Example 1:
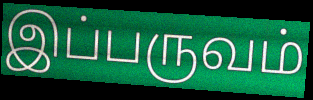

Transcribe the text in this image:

இப்பருவம்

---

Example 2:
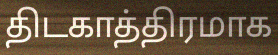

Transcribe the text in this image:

திடகாத்திரமாக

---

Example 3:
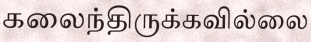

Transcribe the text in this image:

கலைந்திருக்கவில்லை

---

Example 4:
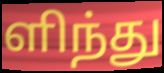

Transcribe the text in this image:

ளிந்து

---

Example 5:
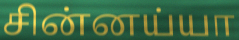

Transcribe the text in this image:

சின்னய்யா